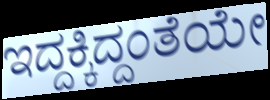
ಇದ್ದಕ್ಕಿದ್ದಂತೆಯೇ